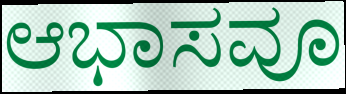
ಆಭಾಸವೂ